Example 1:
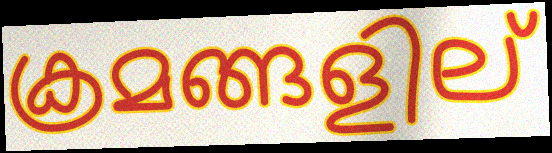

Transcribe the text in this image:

ക്രമങ്ങളില്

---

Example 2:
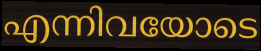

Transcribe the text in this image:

എന്നിവയോടെ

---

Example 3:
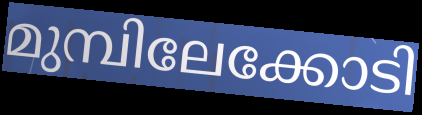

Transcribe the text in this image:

മുമ്പിലേക്കോടി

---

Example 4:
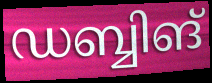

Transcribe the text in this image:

ഡബ്ബിങ്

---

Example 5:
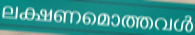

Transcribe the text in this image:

ലക്ഷണമൊത്തവൾ